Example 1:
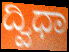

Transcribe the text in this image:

ದ್ವಿಧಾ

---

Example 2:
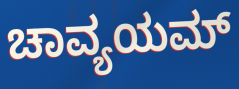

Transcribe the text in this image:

ಚಾವ್ಯಯಮ್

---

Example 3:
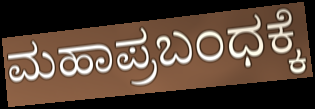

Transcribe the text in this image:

ಮಹಾಪ್ರಬಂಧಕ್ಕೆ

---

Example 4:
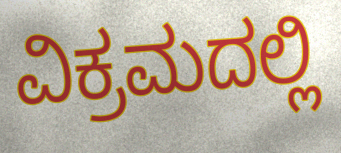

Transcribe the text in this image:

ವಿಕ್ರಮದಲ್ಲಿ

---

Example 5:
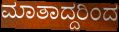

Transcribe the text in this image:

ಮಾತಾದ್ದರಿಂದ